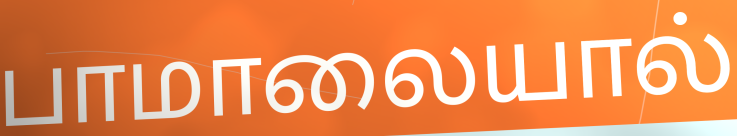
பாமாலையால்